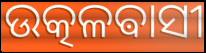
ଉତ୍କଳଵାସୀ